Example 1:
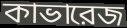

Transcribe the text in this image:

কাভারেজ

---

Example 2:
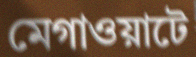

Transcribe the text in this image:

মেগাওয়াটে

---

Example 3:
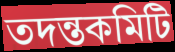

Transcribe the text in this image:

তদন্তকমিটি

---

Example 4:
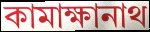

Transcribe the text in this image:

কামাক্ষানাথ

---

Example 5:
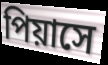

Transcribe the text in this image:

পিয়াসে